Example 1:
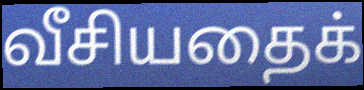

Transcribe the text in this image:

வீசியதைக்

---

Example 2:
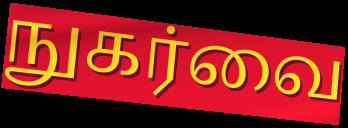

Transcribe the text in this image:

நுகர்வை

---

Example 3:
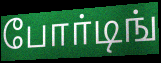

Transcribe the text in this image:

போர்டிங்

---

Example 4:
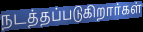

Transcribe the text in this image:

நடத்தப்படுகிறார்கள்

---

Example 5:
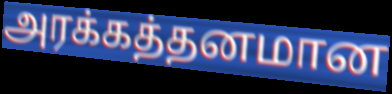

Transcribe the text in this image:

அரக்கத்தனமான